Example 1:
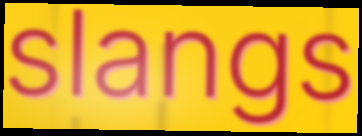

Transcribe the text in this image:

slangs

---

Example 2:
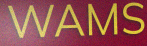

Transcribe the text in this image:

WAMS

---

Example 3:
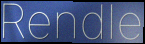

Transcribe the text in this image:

Rendle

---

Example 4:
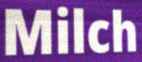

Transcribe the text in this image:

Milch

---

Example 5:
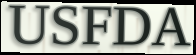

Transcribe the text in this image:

USFDA